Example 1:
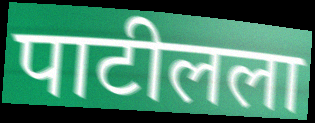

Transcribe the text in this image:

पाटीलला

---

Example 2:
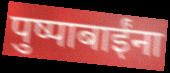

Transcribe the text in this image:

पुष्पाबाईंना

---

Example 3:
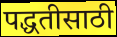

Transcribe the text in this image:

पद्धतीसाठी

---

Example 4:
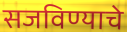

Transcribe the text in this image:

सजविण्याचे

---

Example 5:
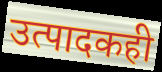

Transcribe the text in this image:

उत्पादकही